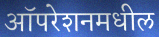
ऑपरेशनमधील